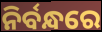
ନିର୍ବନ୍ଧରେ